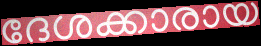
ദേശക്കാരായ